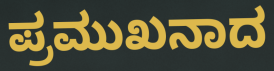
ಪ್ರಮುಖನಾದ